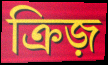
ক্রিজ়